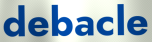
debacle